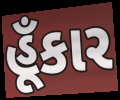
હૂઁકાર